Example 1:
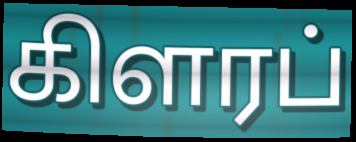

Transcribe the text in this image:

கிளரப்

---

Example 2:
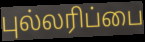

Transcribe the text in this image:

புல்லரிப்பை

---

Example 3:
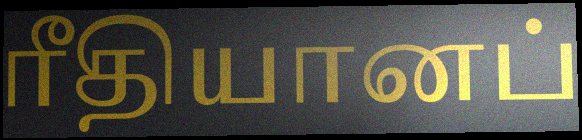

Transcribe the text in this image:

ரீதியானப்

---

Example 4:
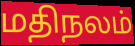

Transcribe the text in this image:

மதிநலம்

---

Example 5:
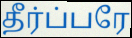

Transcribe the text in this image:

தீர்ப்பரே